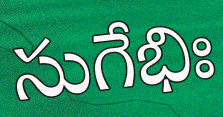
సుగేభిః